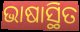
ଭାଷାସ୍ଥିତ